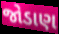
જોડાણ